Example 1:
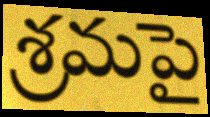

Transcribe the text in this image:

శ్రమపై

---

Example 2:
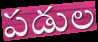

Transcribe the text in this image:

పడుల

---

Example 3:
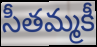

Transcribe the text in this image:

సీతమ్మకీ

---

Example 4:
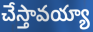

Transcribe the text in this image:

చేస్తావయ్యా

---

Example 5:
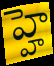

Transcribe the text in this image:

హ్హె